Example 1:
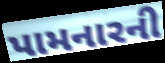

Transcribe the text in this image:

પામનારની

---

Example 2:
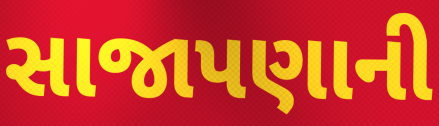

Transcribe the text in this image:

સાજાપણાની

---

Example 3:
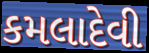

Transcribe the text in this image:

કમલાદેવી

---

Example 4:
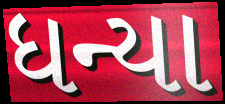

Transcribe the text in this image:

ધન્યા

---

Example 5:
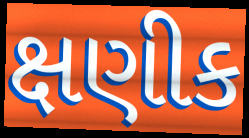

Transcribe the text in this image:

ક્ષણીક